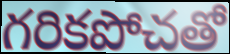
గరికపోచతో